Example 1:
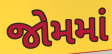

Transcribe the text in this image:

જોમમાં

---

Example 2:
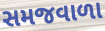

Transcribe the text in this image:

સમજવાળા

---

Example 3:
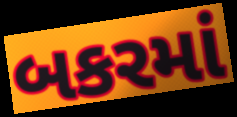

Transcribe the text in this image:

બકરમાં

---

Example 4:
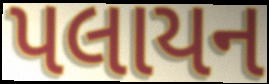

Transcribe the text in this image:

પલાયન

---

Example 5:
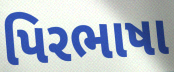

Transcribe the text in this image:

પિરભાષા